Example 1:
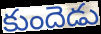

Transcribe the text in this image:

కుందెడు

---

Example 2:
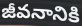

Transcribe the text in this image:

జీవనానికి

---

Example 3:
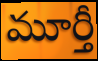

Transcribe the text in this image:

మూర్తీ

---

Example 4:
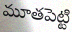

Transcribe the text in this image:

మూతపెట్టి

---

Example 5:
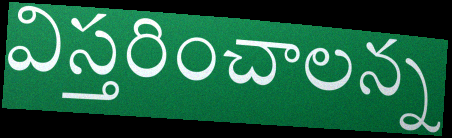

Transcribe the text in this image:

విస్తరించాలన్న